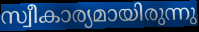
സ്വീകാര്യമായിരുന്നു